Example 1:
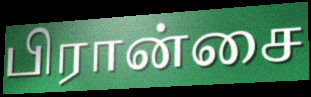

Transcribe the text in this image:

பிரான்சை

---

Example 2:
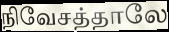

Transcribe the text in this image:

நிவேசத்தாலே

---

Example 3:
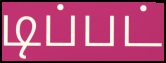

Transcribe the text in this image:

டிப்பட்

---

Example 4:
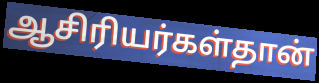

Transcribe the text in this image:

ஆசிரியர்கள்தான்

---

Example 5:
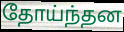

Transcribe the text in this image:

தோய்ந்தன